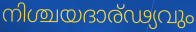
നിശ്ചയദാര്ഢ്യവും